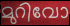
മുറിവോ